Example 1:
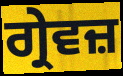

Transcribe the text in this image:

ਗ੍ਰੇਵਜ਼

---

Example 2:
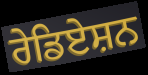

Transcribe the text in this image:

ਰੇਡਿਏਸ਼ਨ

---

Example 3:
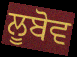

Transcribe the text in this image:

ਲੂਬੋਵ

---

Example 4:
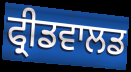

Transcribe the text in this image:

ਫ੍ਰੀਡਵਾਲਡ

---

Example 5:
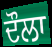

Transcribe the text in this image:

ਦੌਲਾ